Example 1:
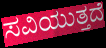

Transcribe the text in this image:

ಸವಿಯುತ್ತದೆ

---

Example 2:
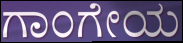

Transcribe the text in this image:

ಗಾಂಗೇಯ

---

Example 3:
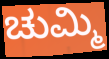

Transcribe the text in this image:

ಚುಮ್ಮಿ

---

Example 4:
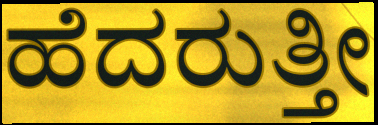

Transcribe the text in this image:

ಹೆದರುತ್ತೀ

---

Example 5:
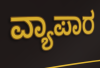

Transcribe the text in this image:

ವ್ಯಾಪಾರ